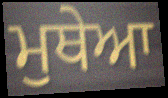
ਮੁਥੇਆ